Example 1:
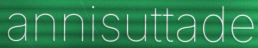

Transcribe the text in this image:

annisuttade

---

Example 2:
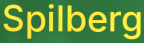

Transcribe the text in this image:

Spilberg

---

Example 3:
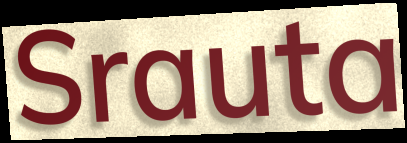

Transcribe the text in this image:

Srauta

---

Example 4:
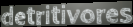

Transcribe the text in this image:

detritivores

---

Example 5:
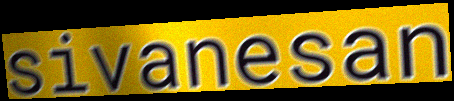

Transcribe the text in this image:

sivanesan